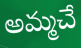
అమ్మచే